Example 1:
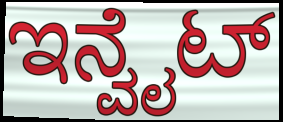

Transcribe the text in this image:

ಇನ್ವೈಟ್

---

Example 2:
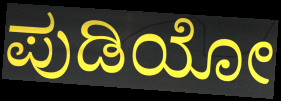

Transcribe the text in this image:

ಪುಡಿಯೋ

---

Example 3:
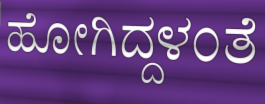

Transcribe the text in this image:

ಹೋಗಿದ್ದಳಂತೆ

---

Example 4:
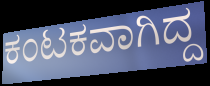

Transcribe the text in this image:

ಕಂಟಕವಾಗಿದ್ದ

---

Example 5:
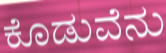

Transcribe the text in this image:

ಕೊಡುವೆನು